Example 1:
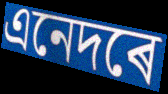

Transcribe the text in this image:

এনেদৰে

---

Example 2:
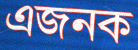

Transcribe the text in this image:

এজনক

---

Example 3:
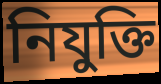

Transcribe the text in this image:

নিযুক্তি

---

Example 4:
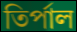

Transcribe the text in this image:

তিৰ্পাল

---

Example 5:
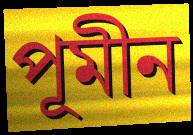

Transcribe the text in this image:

পূমীন